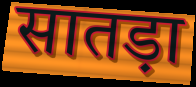
सातड़ा